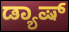
ಡ್ಯಾಷ್